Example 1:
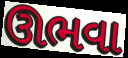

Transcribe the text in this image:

ઊભવા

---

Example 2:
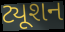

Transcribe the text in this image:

ટ્યૂશન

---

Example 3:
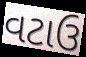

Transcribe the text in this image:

વટાઉ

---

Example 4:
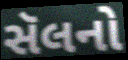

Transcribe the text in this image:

સૅલનો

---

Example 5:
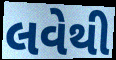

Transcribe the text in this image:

લવેથી